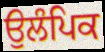
ਉਲੰਪਿਕ